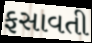
ફસાવતી